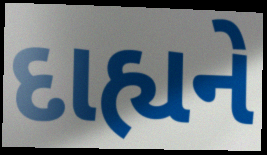
દાહ્યને